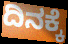
ದಿನಕ್ಕೆ